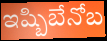
ఇష్బిబేనోబ